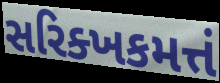
સરિક્ખકમત્તં